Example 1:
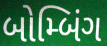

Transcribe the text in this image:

બોમ્બિંગ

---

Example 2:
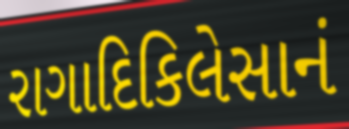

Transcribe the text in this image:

રાગાદિકિલેસાનં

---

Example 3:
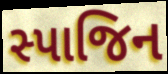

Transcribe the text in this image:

સ્પાજિન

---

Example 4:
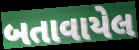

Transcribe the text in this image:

બતાવાયેલ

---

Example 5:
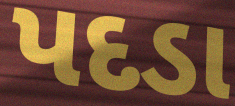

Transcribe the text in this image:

પદડા